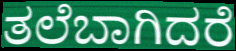
ತಲೆಬಾಗಿದರೆ